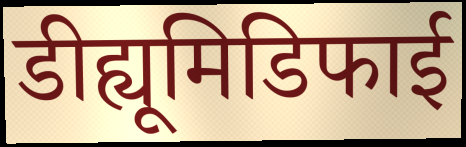
डीह्यूमिडिफाई